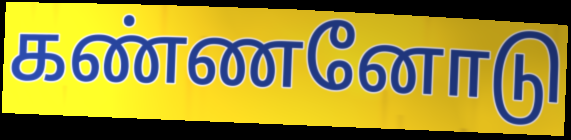
கண்ணனோடு